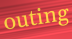
outing